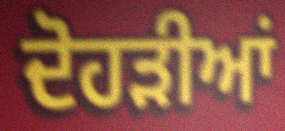
ਦੋਹੜੀਆਂ